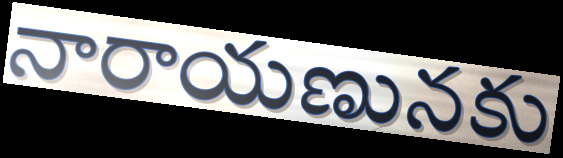
నారాయణునకు